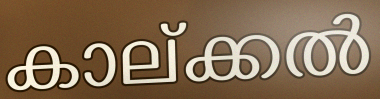
കാല്ക്കൽ